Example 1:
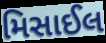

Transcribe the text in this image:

મિસાઈલ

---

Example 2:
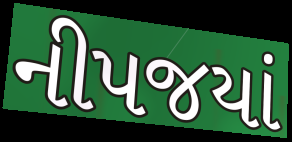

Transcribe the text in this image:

નીપજયાં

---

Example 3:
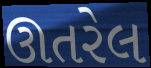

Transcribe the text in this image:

ઊતરેલ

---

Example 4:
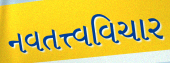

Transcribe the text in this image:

નવતત્ત્વવિચાર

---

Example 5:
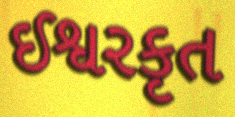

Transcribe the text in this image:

ઈશ્વરકૃત